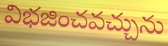
విభజించవచ్చును